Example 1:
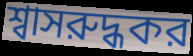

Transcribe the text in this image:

শ্বাসরুদ্ধকর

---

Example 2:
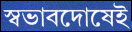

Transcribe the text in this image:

স্বভাবদোষেই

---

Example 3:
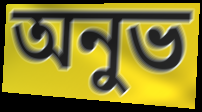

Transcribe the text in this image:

অনুভ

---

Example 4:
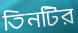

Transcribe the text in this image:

তিনটির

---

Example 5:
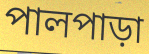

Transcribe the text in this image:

পালপাড়া